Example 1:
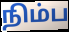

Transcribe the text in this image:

நிம்ப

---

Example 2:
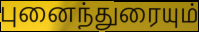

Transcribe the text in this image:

புனைந்துரையும்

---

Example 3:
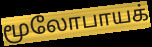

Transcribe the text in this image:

மூலோபாயக்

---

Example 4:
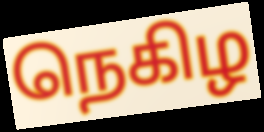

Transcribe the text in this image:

நெகிழ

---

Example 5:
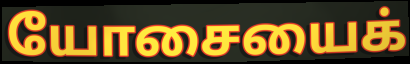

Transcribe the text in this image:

யோசையைக்